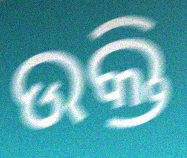
ଉକ୍ତି